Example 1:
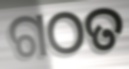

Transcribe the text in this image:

ଗଠତ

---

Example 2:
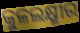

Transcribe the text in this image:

କୁଳଲକ୍ଷ୍ମୀର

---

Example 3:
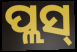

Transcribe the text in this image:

ପ୍ଲସ୍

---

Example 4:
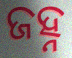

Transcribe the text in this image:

ଜହ୍ନ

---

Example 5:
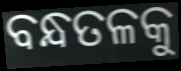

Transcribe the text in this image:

ବନ୍ଧତଳକୁ